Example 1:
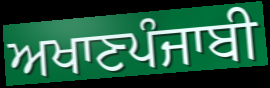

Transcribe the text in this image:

ਅਖਾਣਪੰਜਾਬੀ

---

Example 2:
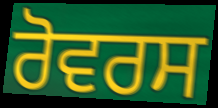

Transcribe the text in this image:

ਰੋਵਰਸ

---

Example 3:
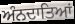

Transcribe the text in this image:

ਅੰਨਦਾਤਿਆਂ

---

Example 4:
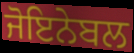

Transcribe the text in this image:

ਜੋਇਨੇਬਲ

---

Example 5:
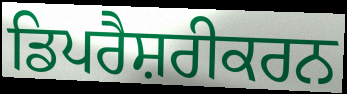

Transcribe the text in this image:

ਡਿਪਰੈਸ਼ਰੀਕਰਨ